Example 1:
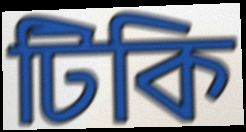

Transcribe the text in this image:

টিকি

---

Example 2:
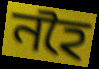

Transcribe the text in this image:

নহৈ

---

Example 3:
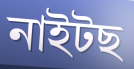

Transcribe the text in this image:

নাইটছ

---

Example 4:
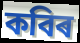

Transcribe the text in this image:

কবিৰ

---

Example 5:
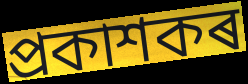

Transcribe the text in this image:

প্ৰকাশকৰ